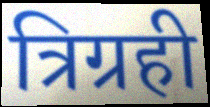
त्रिग्रही